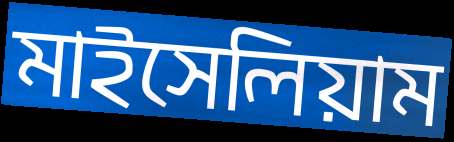
মাইসেলিয়াম